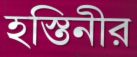
হস্তিনীর